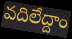
వదిలేద్దాం